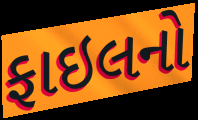
ફાઇલનો